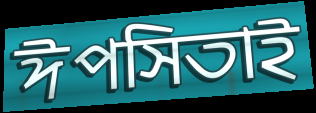
ঈপসিতাই